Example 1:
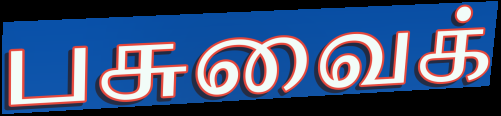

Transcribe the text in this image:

பசுவைக்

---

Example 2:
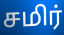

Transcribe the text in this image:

சமிர்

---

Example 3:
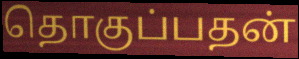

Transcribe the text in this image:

தொகுப்பதன்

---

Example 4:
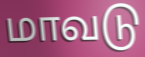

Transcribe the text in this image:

மாவடு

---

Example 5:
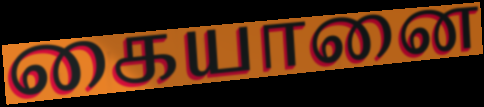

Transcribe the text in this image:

கையானை